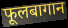
फूलबागान